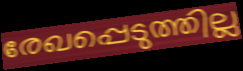
രേഖപ്പെടുത്തില്ല